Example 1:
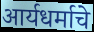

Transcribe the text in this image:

आर्यधर्माचे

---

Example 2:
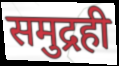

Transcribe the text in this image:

समुद्रही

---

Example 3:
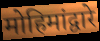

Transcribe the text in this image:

मोहिमांद्वारे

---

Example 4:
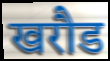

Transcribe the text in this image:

खरौड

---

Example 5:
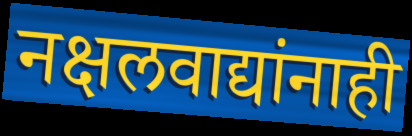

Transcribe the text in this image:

नक्षलवाद्यांनाही